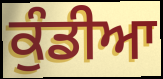
ਕੁੰਡੀਆ